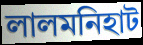
লালমনিহাট